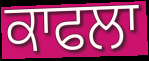
ਕਾਫਲਾ